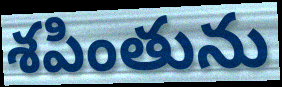
శపింతును